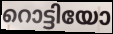
റൊട്ടിയോ